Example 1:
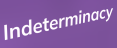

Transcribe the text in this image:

Indeterminacy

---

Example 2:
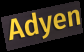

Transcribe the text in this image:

Adyen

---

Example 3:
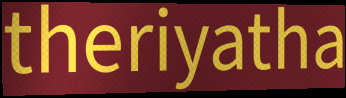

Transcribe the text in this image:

theriyatha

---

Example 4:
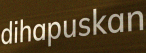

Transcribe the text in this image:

dihapuskan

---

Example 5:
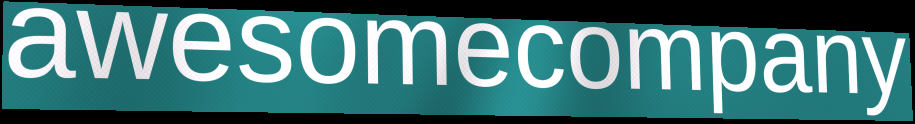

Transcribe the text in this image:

awesomecompany